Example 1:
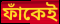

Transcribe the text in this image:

ফাঁকেই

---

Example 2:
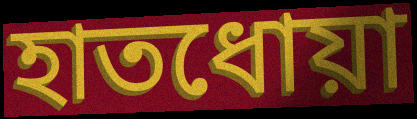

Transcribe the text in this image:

হাতধোয়া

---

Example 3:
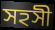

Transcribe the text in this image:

সহসী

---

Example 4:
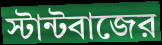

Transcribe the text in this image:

স্টান্টবাজের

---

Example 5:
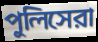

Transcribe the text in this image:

পুলিসেরা